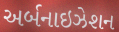
અર્બનાઇઝેશન